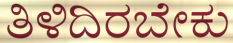
ತಿಳಿದಿರಬೇಕು